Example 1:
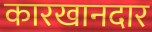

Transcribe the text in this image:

कारखानदार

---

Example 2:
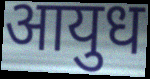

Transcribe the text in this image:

आयुध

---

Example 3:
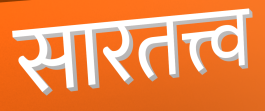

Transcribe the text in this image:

सारतत्त्व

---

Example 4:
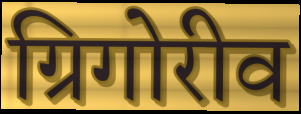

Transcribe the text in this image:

ग्रिगोरीव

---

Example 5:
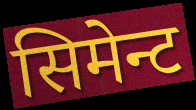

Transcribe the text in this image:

सिमेन्ट